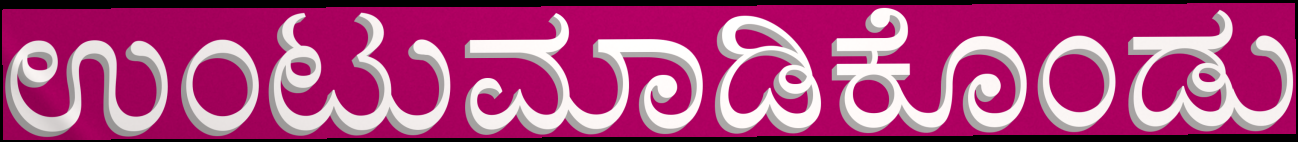
ಉಂಟುಮಾಡಿಕೊಂಡು